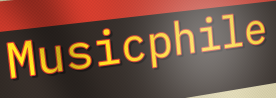
Musicphile